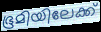
ഭൂമിയിലേക്ക്